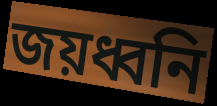
জয়ধ্বনি